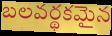
బలవర్థకమైన